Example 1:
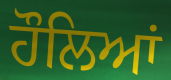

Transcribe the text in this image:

ਹੌਲਿਆਂ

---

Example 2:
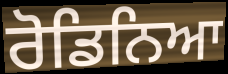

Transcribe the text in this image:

ਰੋਡਿਨਿਆ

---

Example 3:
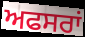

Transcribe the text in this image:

ਅਫਸਰਾਂ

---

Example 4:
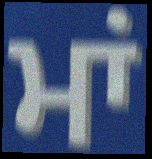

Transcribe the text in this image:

ਮਾਂ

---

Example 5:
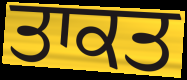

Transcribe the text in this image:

ਤਾਕਤ